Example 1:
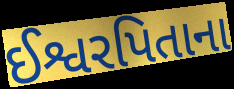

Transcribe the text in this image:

ઈશ્વરપિતાના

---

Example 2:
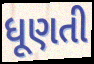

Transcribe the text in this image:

ધૂણતી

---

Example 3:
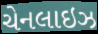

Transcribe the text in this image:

ચેનલાઇઝ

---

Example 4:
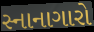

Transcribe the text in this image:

સ્નાનાગારો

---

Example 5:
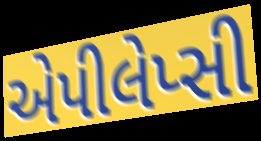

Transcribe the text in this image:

એપીલેપ્સી